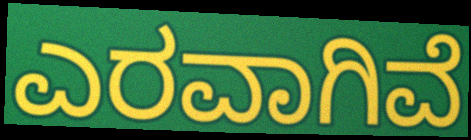
ಎರವಾಗಿವೆ